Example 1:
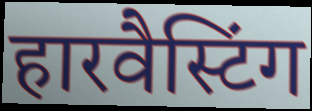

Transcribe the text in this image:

हारवैस्टिंग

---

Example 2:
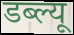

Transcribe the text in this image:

डब्ल्यू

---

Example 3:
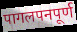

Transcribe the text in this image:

पागलपनपूर्ण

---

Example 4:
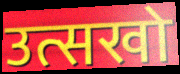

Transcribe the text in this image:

उत्सखो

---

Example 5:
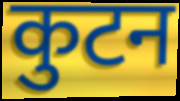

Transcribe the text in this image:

कुटन